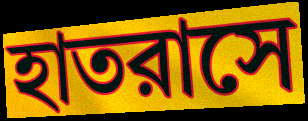
হাতরাসে